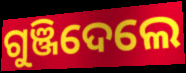
ଗୁଞ୍ଜିଦେଲେ